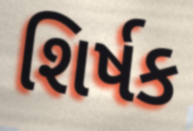
શિર્ષક